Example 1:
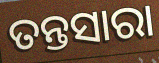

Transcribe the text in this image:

ତନ୍ତସାରା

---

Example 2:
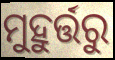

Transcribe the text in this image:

ମୁହୁର୍ତ୍ତରୁ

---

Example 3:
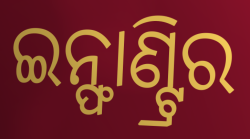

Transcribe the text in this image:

ଇନ୍ଫାଣ୍ଟ୍ରିର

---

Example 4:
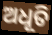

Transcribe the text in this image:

ଅଧୂତି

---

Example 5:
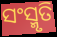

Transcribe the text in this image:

ସଂସ୍ମୃତି